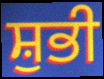
ਸ਼ੁਭੀ